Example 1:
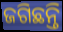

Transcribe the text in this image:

ଜଗିଛନ୍ତି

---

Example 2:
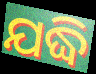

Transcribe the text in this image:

ଯଦ୍ଧି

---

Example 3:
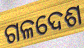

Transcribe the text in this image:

ଗଳଦେଶ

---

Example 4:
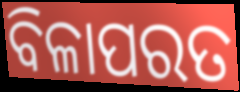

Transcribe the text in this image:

ବିଳାପରତ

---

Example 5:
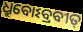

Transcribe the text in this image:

ଧ୍ରୁବୋଽବ୍ରବୀତ୍